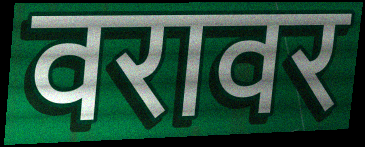
वरावर